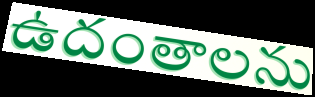
ఉదంతాలను